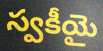
స్వకీయై